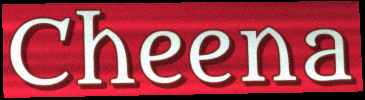
Cheena